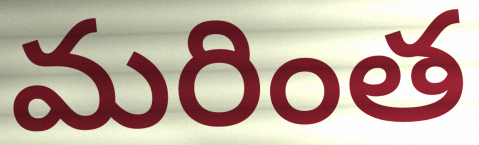
మరింత